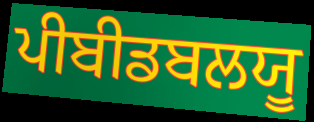
ਪੀਬੀਡਬਲਯੂ